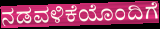
ನಡವಳಿಕೆಯೊಂದಿಗೆ